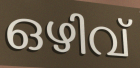
ഒഴിവ്